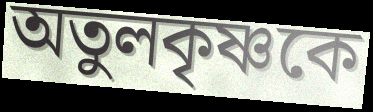
অতুলকৃষ্ণকে